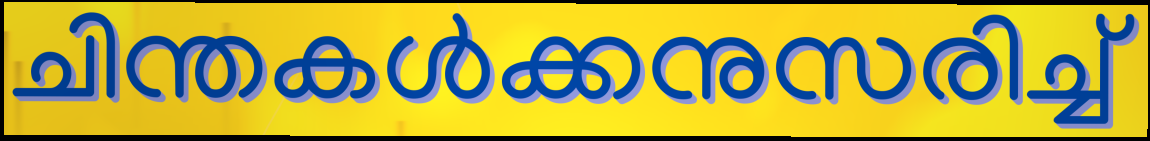
ചിന്തകൾക്കനുസരിച്ച്